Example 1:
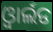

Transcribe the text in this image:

ଓ୍ବାର୍ଲଡ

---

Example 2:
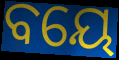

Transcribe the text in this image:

ବୟେ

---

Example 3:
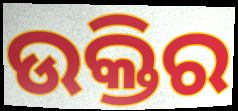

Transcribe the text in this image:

ଉକ୍ତିର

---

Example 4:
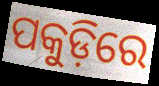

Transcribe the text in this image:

ପକୁଡ଼ିରେ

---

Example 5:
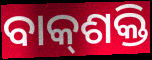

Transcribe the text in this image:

ବାକ୍‍ଶକ୍ତି